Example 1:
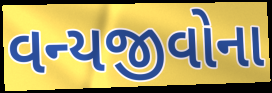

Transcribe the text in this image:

વન્યજીવોના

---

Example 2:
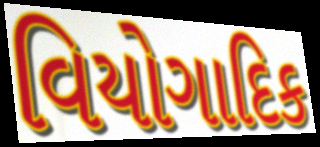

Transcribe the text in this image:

વિયોગાદિક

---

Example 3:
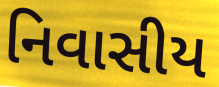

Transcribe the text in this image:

નિવાસીય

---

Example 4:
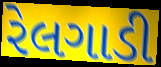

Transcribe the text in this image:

રેલગાડી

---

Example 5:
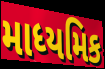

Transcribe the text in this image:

માધ્યમિક